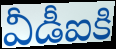
వీడీఐకి